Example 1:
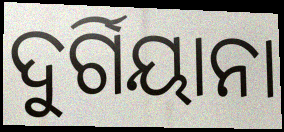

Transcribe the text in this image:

ଦୁର୍ଗିୟାନା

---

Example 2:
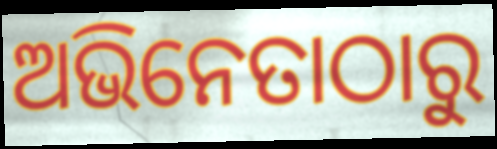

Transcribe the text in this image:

ଅଭିନେତାଠାରୁ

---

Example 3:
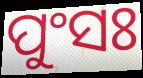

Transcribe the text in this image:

ପୁଂସଃ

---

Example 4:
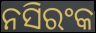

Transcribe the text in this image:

ନସିରଂକ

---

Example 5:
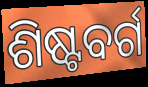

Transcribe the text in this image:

ଶିଷ୍ଟବର୍ଗ